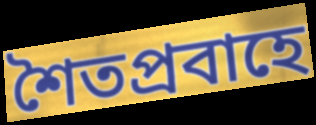
শৈতপ্রবাহে